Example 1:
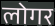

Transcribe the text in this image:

लोगर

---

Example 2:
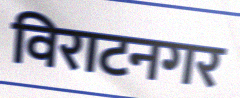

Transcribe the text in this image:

विराटनगर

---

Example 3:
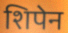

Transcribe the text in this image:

शिपेन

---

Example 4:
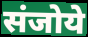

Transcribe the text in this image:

संजोये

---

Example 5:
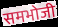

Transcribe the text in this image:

समभोजी